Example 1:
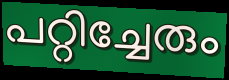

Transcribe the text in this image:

പറ്റിച്ചേരും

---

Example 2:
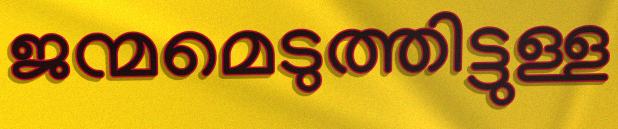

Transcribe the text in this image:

ജന്മമെടുത്തിട്ടുള്ള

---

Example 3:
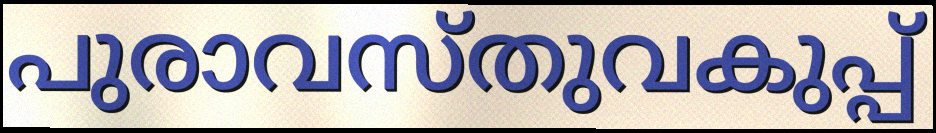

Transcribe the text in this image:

പുരാവസ്തുവകുപ്പ്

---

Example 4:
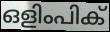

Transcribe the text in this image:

ഒളിംപിക്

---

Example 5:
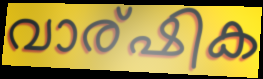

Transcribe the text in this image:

വാര്ഷിക